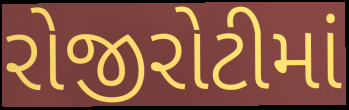
રોજીરોટીમાં